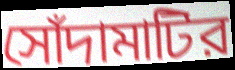
সোঁদামাটির